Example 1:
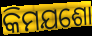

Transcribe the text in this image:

କିମଯଶୋ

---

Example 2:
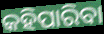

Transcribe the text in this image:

କହିପାରିବା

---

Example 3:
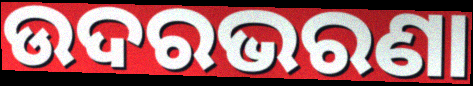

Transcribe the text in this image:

ଉଦରଭରଣା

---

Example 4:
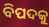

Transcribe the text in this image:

ବିପଦକୁ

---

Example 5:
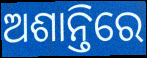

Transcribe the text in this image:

ଅଶାନ୍ତିରେ